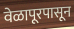
वेळापूरपासून